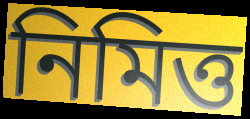
নিমিত্ত